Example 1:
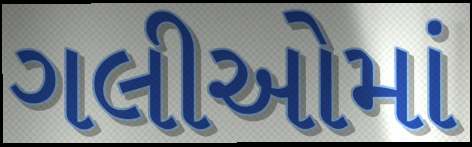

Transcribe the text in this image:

ગલીઓમાં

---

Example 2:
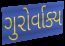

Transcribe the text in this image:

ગુરોર્વાક્ય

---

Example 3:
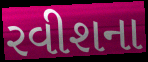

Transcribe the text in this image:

રવીશના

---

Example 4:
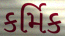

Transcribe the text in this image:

કર્મિક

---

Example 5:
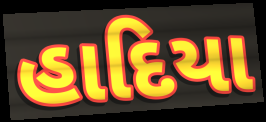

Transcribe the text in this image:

હાદિયા